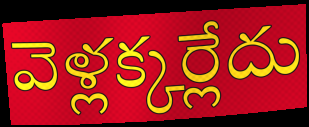
వెళ్లక్కర్లేదు